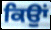
ਕਿਉਾਂ